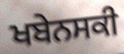
ਖਬੇਨਸਕੀ